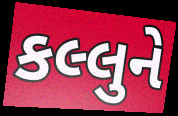
કલ્લુને